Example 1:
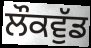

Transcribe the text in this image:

ਲੌਕਵੁੱਡ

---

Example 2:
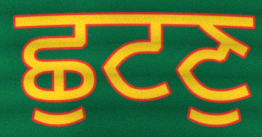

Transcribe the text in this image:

ਛੁਟਣੁ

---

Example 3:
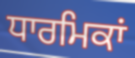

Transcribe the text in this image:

ਧਾਰਮਿਕਾਂ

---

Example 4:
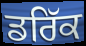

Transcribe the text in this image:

ਡਰਿੱਕ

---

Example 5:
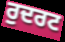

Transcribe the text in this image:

ਰੁਦਰਟ